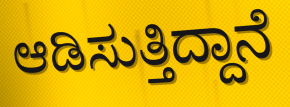
ಆಡಿಸುತ್ತಿದ್ದಾನೆ